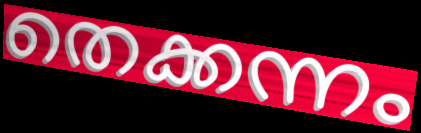
തെക്കന്നം